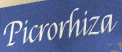
Picrorhiza